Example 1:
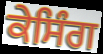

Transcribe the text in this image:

ਕੇਸਿੰਗ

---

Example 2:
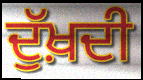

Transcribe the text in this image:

ਦੁੱਖ਼ਦੀ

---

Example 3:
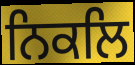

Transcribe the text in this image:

ਨਿਕਲਿ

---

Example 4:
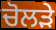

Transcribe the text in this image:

ਚੋਲੜੇ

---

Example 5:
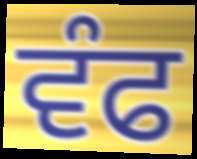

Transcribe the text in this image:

ਵੰਫ